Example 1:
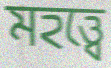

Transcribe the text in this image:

মহত্ত্বে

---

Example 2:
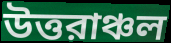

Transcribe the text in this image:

উত্তরাঞ্চল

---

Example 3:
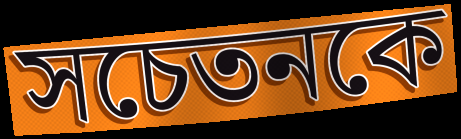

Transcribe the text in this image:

সচেতনকে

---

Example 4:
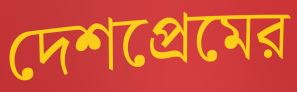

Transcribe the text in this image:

দেশপ্রেমের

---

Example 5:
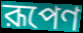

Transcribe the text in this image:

রূপেণ